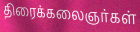
திரைக்கலைஞர்கள்